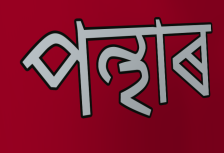
পন্থাৰ